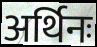
अर्थिनः